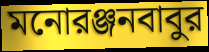
মনোরঞ্জনবাবুর